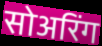
सोअरिंग